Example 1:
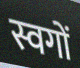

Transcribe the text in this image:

स्वगों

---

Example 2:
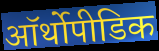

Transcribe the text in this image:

ऑर्थोपीडिक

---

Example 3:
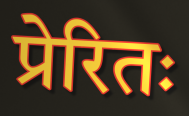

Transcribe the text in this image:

प्रेरितः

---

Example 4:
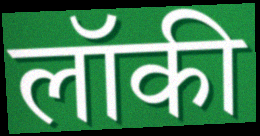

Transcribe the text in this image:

लॉकी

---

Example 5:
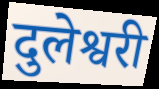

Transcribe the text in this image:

दुलेश्वरी